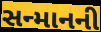
સન્માનની